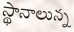
స్థానాలున్న